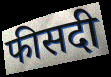
फीसदी